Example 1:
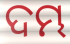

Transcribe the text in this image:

ଦମ୍ଭ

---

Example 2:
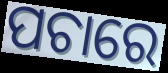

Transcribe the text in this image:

ପଚାରେ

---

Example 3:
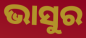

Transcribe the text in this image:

ଭାସୁର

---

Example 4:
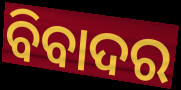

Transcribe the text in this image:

ବିବାଦର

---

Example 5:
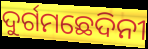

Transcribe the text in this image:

ଦୁର୍ଗମଛେଦିନୀ